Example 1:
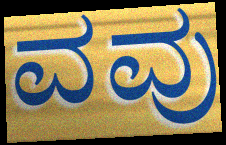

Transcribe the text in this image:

ವವು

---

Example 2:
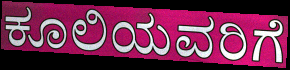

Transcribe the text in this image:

ಕೂಲಿಯವರಿಗೆ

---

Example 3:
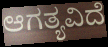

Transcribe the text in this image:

ಆಗತ್ಯವಿದೆ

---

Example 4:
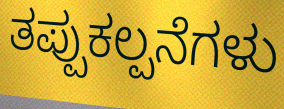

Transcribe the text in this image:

ತಪ್ಪುಕಲ್ಪನೆಗಳು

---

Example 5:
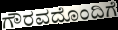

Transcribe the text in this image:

ಗೌರವದೊಂದಿಗೆ